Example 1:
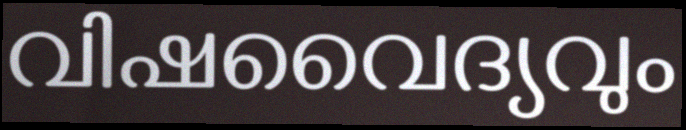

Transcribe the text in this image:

വിഷവൈദ്യവും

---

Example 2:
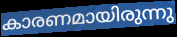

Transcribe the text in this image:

കാരണമായിരുന്നു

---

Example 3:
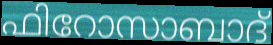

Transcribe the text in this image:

ഫിറോസാബാദ്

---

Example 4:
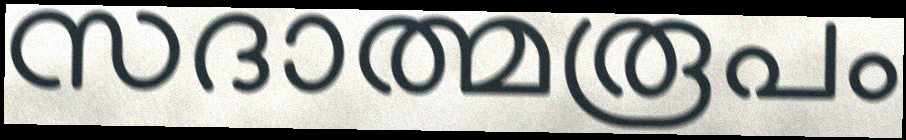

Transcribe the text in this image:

സദാത്മരൂപം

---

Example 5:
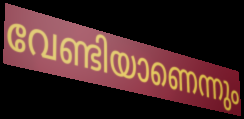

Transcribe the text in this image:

വേണ്ടിയാണെന്നും